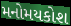
મનોમયકોશ